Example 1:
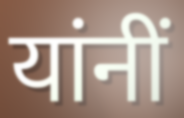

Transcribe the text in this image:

यांनीं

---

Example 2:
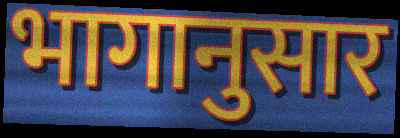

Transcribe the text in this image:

भागानुसार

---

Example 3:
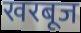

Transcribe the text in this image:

खरबूज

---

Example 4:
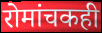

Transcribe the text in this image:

रोमांचकही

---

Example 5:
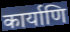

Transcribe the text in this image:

कार्याणि